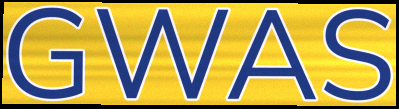
GWAS